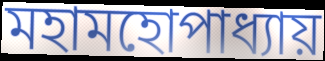
মহামহোপাধ্যায়